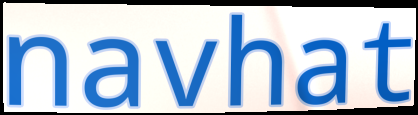
navhat